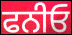
ਫਨੀਓ